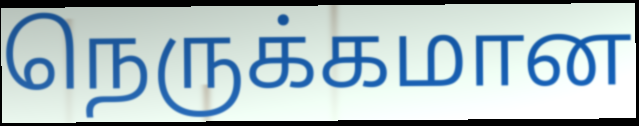
நெருக்கமான